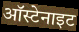
ऑस्टेनाइट